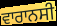
ਵਾਰਾਨਸੀ